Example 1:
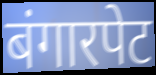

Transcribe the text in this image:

बंगारपेट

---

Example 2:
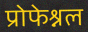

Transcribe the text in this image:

प्रोफेश्नल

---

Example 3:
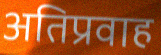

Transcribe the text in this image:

अतिप्रवाह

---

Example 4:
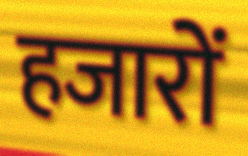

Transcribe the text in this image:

हजारों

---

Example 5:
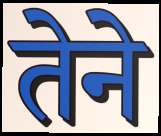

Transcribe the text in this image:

तेने